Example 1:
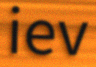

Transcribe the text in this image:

iev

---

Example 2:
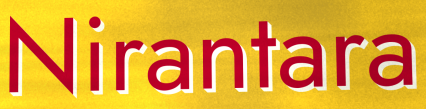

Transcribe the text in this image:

Nirantara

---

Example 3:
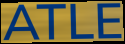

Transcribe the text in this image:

ATLE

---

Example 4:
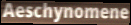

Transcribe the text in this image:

Aeschynomene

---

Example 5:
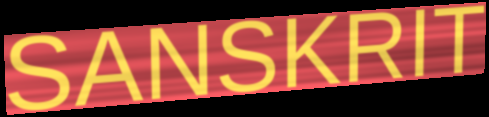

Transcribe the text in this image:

SANSKRIT